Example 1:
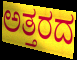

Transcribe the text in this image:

ಅತ್ತರದ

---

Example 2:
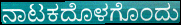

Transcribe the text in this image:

ನಾಟಕದೊಳಗೊಂದು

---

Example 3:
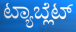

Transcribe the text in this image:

ಟ್ಯಾಬ್ಲೆಟ್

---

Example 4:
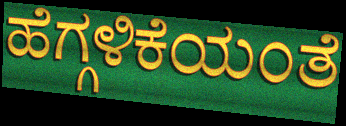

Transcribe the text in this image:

ಹೆಗ್ಗಳಿಕೆಯಂತೆ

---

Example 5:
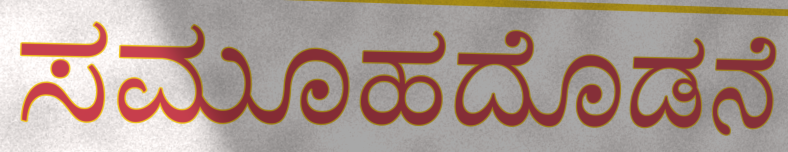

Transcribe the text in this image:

ಸಮೂಹದೊಡನೆ